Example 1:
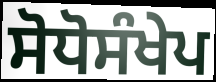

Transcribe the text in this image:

ਸੋਧੋਸੰਖੇਪ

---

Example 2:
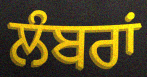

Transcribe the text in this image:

ਲੰਬਰਾਂ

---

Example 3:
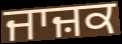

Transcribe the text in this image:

ਜਾਜ਼ਕ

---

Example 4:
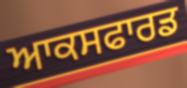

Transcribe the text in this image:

ਆਕਸਫਾਰਡ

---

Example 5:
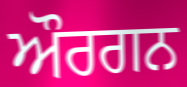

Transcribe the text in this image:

ਔਰਗਨ